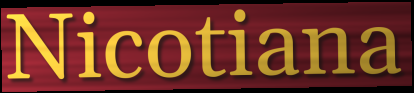
Nicotiana